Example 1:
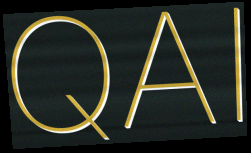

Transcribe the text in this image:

QAI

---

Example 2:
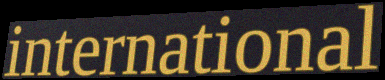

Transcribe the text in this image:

international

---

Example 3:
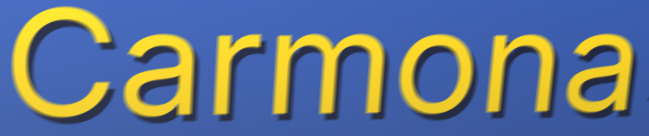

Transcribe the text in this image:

Carmona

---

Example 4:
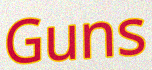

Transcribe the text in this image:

Guns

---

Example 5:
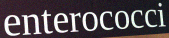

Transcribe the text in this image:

enterococci